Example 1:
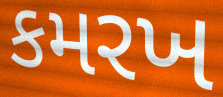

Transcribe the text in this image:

કમરખ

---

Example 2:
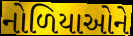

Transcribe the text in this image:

નોળિયાઓને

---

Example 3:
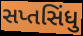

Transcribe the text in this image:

સપ્તસિંધુ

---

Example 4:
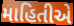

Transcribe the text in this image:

માહિતીએ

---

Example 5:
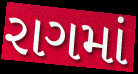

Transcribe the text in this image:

રાગમાં